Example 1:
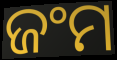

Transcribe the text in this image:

ଜଂମ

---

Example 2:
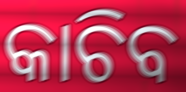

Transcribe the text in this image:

କାଚିବ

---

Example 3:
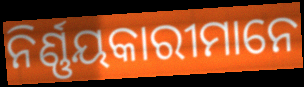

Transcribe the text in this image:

ନିର୍ଣ୍ଣୟକାରୀମାନେ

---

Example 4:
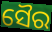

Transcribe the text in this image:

ସୈର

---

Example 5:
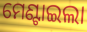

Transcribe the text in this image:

ମେଣ୍ଟାଇଲା